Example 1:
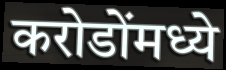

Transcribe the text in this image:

करोडोंमध्ये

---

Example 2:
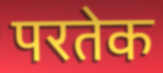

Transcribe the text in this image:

परतेक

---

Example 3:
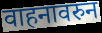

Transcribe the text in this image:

वाहनावरुन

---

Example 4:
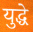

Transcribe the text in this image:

युद्धे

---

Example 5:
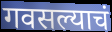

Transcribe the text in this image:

गवसल्याचं